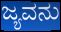
ಜ್ಯವನು